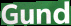
Gund